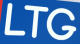
LTG